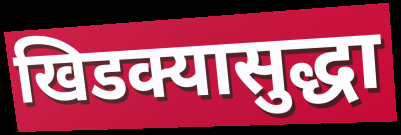
खिडक्यासुद्धा